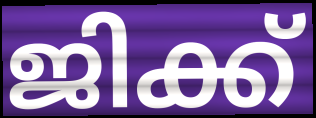
ജിക്ക്